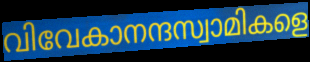
വിവേകാനന്ദസ്വാമികളെ